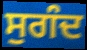
ਸੁਗੰਦ